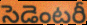
సెడెంటరీ